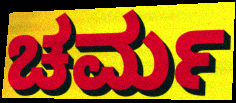
ಚರ್ಮ